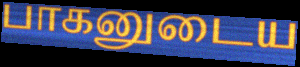
பாகனுடைய